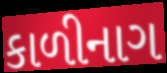
કાળીનાગ